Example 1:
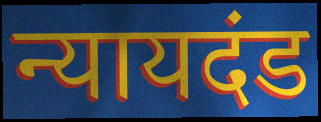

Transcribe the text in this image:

न्यायदंड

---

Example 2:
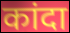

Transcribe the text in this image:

कांदा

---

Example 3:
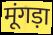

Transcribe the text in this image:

मूंगड़ा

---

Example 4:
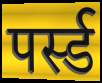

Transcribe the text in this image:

पर्स्ड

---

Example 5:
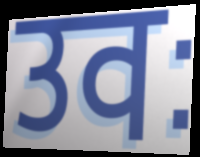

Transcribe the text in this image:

उवः